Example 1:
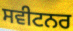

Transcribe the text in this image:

ਸਵੀਟਨਰ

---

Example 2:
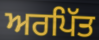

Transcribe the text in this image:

ਅਰਪਿੱਤ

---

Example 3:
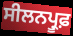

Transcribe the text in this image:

ਸੀਲਨਪ੍ਰੂਫ਼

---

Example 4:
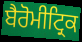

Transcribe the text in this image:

ਬੈਰੋਮੀਟ੍ਰਿਕ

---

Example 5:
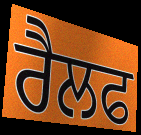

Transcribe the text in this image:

ਰੈਲਫ